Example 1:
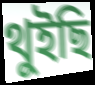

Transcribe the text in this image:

থুইছি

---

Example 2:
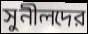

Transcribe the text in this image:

সুনীলদের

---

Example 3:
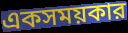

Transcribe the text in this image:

একসময়কার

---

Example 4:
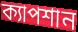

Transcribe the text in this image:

ক্যাপশান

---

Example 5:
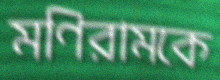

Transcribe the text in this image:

মণিরামকে